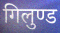
गिलुण्ड